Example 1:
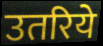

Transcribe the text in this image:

उतरिये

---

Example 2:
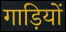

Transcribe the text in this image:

गाड़ियों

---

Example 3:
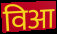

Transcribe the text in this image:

विआ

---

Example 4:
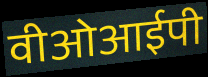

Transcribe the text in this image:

वीओआईपी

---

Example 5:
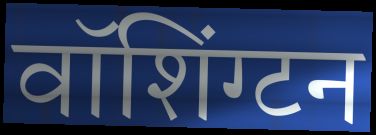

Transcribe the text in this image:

वॉशिंग्टन